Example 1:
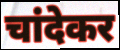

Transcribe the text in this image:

चांदेकर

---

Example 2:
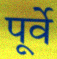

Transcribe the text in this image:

पूर्वे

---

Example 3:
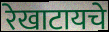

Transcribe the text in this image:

रेखाटायचे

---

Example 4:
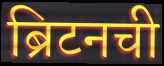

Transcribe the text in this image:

ब्रिटनची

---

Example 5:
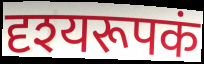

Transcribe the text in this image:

दृश्‍यरूपकं